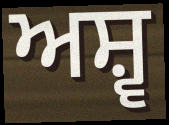
ਅਸ਼੍ਵ